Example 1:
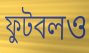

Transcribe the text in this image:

ফুটবলও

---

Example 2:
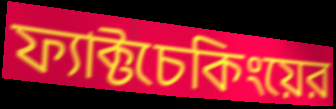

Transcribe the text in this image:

ফ্যাক্টচেকিংয়ের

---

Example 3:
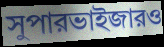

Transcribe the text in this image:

সুপারভাইজারও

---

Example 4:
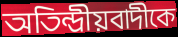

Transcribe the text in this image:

অতিন্দ্রীয়বাদীকে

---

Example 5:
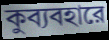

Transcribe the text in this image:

কুব্যবহারে